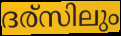
ദര്സിലും